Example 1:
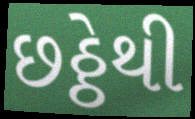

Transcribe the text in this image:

છઠ્ઠેથી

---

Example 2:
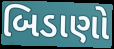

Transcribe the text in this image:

બિડાણો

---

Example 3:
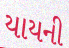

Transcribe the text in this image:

યાયની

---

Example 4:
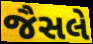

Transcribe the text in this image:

જૈસલે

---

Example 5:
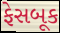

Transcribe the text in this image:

ફેસબૂક